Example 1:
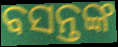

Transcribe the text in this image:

ବସନ୍ତଙ୍କ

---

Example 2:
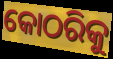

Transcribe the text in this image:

କୋଠରିକୁ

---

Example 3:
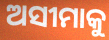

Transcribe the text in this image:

ଅସୀମାକୁ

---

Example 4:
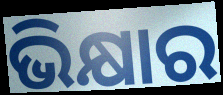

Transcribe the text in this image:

ଭିକ୍ଷାର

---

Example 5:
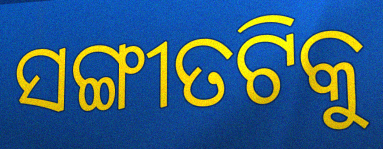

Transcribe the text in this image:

ସଙ୍ଗୀତଟିକୁ